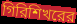
গিরিশিখরের